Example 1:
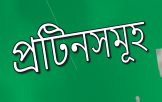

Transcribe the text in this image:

প্ৰটিনসমূহ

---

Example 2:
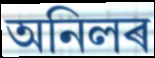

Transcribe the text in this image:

অনিলৰ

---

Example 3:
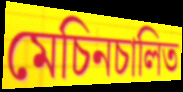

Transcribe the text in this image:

মেচিনচালিত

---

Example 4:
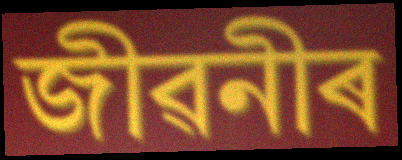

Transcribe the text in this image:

জীৱনীৰ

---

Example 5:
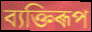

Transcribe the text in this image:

ব্যক্তিৰূপ